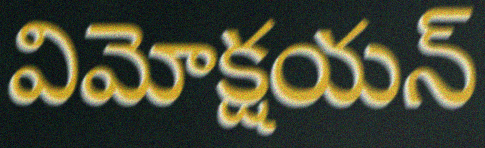
విమోక్షయన్